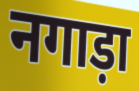
नगाड़ा